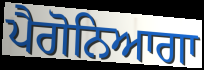
ਪੈਗੋਨਿਆਗਾ